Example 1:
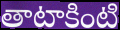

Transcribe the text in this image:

తాటాకింటి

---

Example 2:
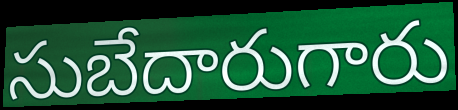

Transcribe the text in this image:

సుబేదారుగారు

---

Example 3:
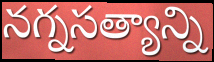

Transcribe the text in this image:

నగ్నసత్యాన్ని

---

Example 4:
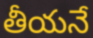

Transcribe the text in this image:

తీయనే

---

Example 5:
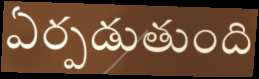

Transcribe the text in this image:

ఏర్పడుతుంది